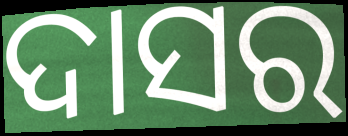
ଦାସର